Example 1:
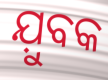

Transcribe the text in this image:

ଯ଼ୁବକ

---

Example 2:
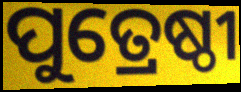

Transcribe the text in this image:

ପୁତ୍ରେଷ୍ଠୀ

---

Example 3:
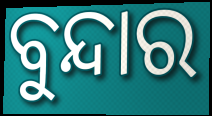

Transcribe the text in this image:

ବୁନ୍ଦାର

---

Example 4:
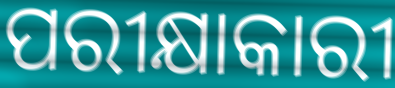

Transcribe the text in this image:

ପରୀକ୍ଷାକାରୀ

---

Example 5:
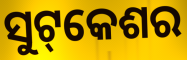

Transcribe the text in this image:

ସୁଟ୍‌କେଶର